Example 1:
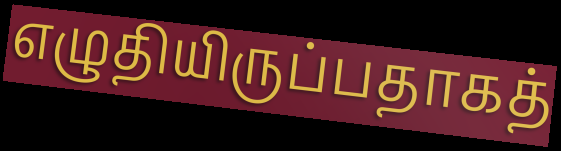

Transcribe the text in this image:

எழுதியிருப்பதாகத்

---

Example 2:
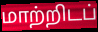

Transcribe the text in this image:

மாற்றிடப்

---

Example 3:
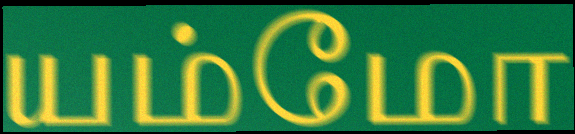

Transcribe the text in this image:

யம்மோ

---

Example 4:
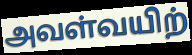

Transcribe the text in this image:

அவள்வயிற்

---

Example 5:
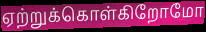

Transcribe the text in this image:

ஏற்றுக்கொள்கிறோமோ